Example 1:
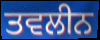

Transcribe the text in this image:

ਤਵਲੀਨ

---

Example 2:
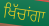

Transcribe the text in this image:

ਖਿੱਚਾਂਗਾ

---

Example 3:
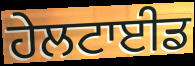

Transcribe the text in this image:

ਹੇਲਟਾਈਡ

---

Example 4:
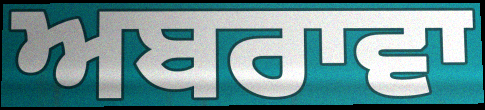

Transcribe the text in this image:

ਅਬਰਾਵਾ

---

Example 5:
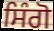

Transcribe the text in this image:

ਸਿੰਗੋ